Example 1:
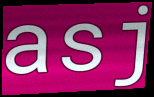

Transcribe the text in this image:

asj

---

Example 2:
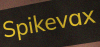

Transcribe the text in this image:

Spikevax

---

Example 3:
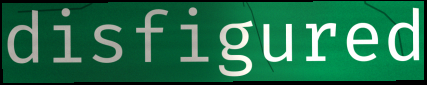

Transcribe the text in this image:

disfigured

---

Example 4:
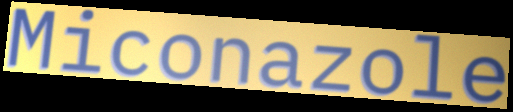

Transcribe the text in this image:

Miconazole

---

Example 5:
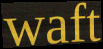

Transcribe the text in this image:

waft